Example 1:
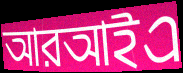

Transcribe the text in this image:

আরআইএ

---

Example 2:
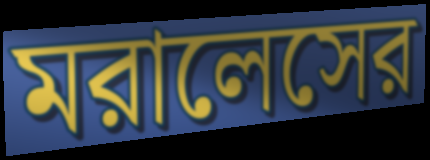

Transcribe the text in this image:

মরালেসের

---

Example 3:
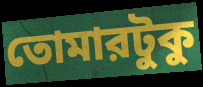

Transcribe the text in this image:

তোমারটুকু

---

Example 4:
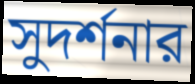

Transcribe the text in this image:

সুদর্শনার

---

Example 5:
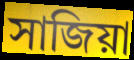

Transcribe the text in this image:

সাজিয়া